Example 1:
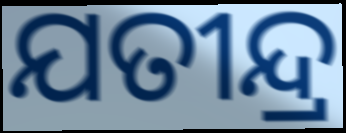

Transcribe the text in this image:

ଯତୀନ୍ଦ୍ର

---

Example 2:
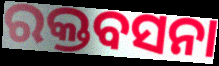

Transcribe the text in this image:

ରକ୍ତବସନା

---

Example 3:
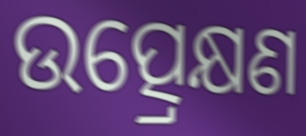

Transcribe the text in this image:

ଉତ୍ପ୍ରେକ୍ଷଣ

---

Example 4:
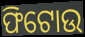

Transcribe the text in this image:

ଫିଟୋଉ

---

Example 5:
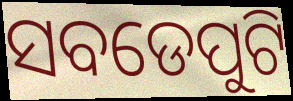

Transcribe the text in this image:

ସବଡେପୁଟି